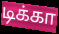
டிக்கா